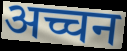
अच्चन